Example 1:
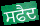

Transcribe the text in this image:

ਸਫੈਦ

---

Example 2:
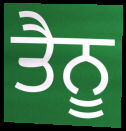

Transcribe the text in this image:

ਤੈਨੂ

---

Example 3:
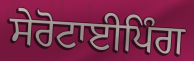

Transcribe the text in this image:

ਸੇਰੋਟਾਈਪਿੰਗ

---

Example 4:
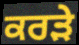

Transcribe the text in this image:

ਕਰੜੇ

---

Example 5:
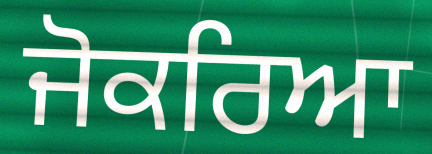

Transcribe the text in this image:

ਜੋਕਰਿਆ